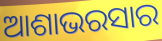
ଆଶାଭରସାର